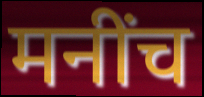
मनींच